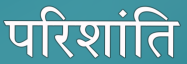
परिशांति